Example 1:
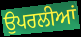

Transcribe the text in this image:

ਉਪਰਲੀਆਂ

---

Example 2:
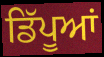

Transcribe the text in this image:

ਡਿੱਪੂਆਂ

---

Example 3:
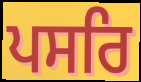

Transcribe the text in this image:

ਪਸਰਿ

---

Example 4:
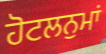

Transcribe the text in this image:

ਹੋਟਲਨੁਮਾਂ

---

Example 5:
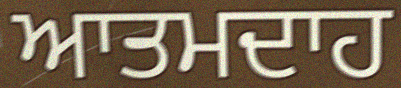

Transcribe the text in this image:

ਆਤਮਦਾਹ